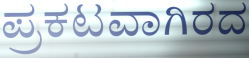
ಪ್ರಕಟವಾಗಿರದ